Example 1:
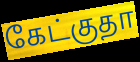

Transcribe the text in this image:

கேட்குதா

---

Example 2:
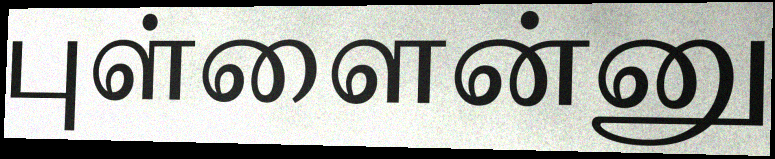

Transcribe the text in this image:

புள்ளைன்னு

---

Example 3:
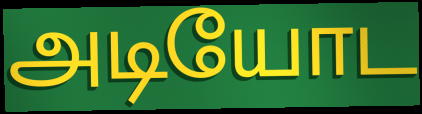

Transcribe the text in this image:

அடியோட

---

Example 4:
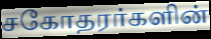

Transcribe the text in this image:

சகோதரர்களின்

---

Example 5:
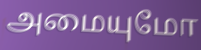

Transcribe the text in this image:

அமையுமோ